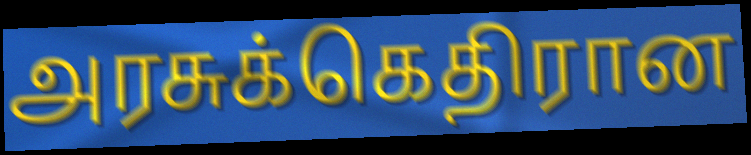
அரசுக்கெதிரான